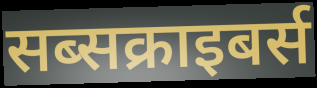
सब्सक्राइबर्स